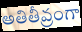
అతితీవ్రంగా